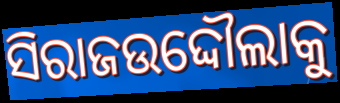
ସିରାଜଉଦ୍ଦୌଲାକୁ